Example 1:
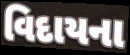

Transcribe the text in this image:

વિદાયના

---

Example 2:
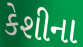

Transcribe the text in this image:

કેશીના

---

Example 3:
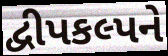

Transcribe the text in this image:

દ્વીપકલ્પને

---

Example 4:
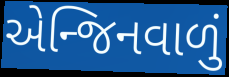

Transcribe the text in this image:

એન્જિનવાળું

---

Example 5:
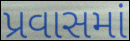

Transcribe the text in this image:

પ્રવાસમાં